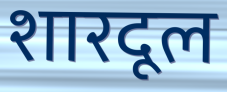
शारदूल